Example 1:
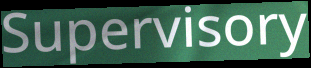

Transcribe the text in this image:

Supervisory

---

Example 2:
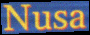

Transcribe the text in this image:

Nusa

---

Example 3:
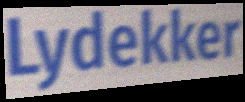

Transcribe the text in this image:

Lydekker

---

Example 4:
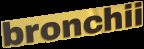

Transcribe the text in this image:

bronchii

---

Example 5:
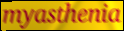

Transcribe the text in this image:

myasthenia